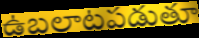
ఉబలాటపడుతూ